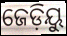
ଜେଡ଼ିୟୁ